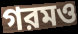
গরমও